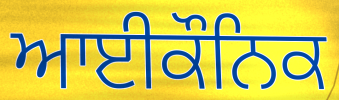
ਆਈਕੌਨਿਕ